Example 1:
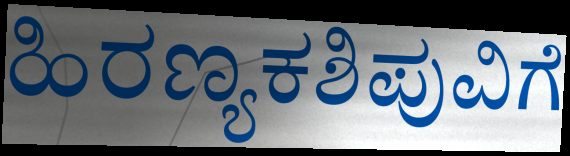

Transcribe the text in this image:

ಹಿರಣ್ಯಕಶಿಪುವಿಗೆ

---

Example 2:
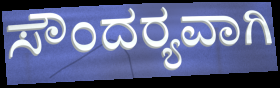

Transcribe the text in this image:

ಸೌಂದರ‍್ಯವಾಗಿ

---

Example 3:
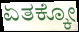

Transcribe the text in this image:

ಏತಕ್ಕೋ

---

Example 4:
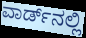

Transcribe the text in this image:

ವಾರ್ಡ್‌ನಲ್ಲಿ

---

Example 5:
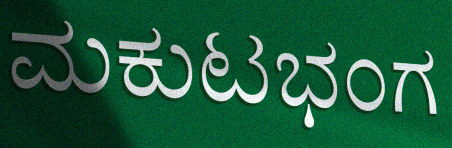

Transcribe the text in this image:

ಮಕುಟಭಂಗ